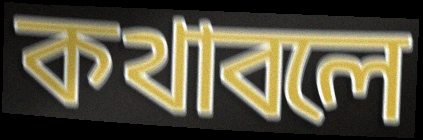
কথাবলে